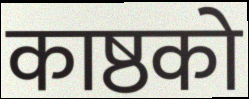
काष्ठको